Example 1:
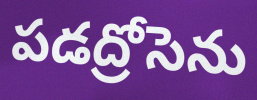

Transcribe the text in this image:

పడద్రోసెను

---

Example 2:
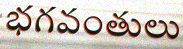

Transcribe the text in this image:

భగవంతులు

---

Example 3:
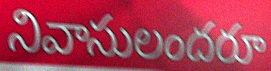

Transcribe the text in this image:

నివాసులందరూ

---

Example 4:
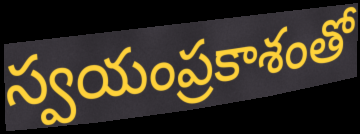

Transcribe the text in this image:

స్వయంప్రకాశంతో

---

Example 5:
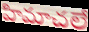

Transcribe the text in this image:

హిమాచలే